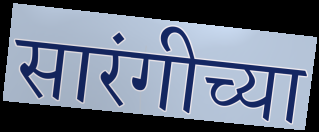
सारंगीच्या